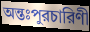
অন্তঃপুরচারিণী